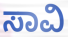
ಸಾವಿ